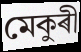
মেকুৰী